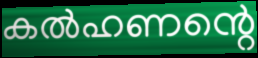
കൽഹണന്റെ